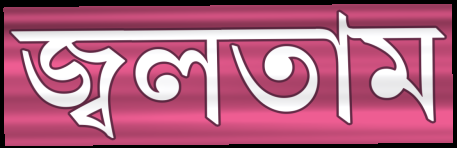
জ্বলতাম